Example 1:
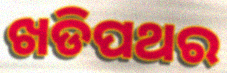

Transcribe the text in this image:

ଖଡିପଥର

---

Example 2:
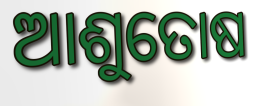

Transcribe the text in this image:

ଆଶୁତୋଷ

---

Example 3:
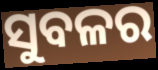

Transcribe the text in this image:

ସୁବଳର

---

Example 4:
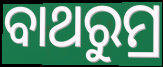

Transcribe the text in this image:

ବାଥରୁମ୍ର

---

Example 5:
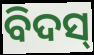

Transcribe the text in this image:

ବିଦସ୍